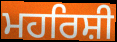
ਮਹਰਿਸ਼ੀ